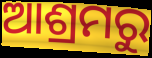
ଆଶ୍ରମରୁ